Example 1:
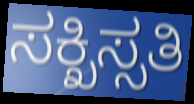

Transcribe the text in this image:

ಸಕ್ಖಿಸ್ಸತಿ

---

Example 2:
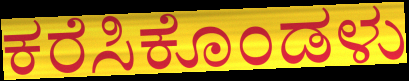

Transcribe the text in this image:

ಕರೆಸಿಕೊಂಡಳು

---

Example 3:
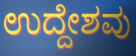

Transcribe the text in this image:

ಉದ್ದೇಶವು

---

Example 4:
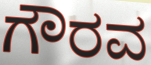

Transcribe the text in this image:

ಗೌರವ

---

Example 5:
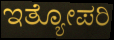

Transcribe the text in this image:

ಇತ್ಯೋಪರಿ